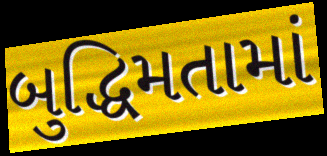
બુદ્ધિમતામાં